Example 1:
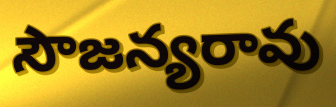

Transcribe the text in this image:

సౌజన్యరావు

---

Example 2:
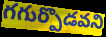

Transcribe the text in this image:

గగుర్పొడవని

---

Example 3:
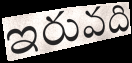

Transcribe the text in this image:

ఇరువది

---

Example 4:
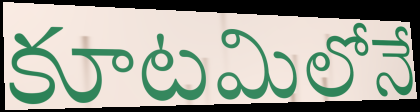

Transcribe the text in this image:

కూటమిలోనే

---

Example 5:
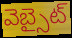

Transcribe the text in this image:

వెబ్సైట్